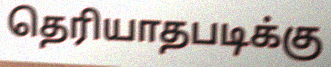
தெரியாதபடிக்கு